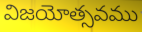
విజయోత్సవము